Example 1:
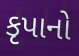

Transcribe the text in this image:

કૃપાનો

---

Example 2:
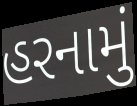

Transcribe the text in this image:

હરનામું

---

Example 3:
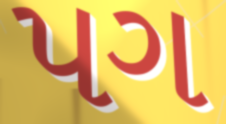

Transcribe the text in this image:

પગ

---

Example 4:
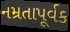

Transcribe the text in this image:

નમ્રતાપૂર્વક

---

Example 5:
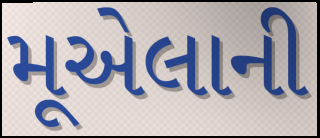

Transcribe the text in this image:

મૂએલાની